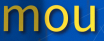
mou